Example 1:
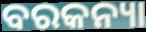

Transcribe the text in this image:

ବରକନ୍ୟା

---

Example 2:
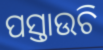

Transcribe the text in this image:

ପସ୍ତାଉଚି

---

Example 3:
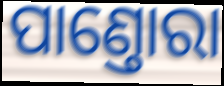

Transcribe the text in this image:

ପାଣ୍ତୋରା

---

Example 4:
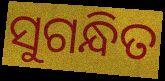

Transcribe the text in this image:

ସୁଗନ୍ଧିତ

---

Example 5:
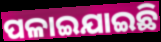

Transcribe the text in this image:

ପଳାଇଯାଇଛି